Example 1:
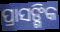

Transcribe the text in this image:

ପ୍ରାସଙ୍ଗିକ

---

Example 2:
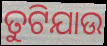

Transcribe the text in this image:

ତୁଟିଯାଉ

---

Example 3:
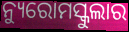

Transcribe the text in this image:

ନ୍ୟୁରୋମସ୍କୁଲାର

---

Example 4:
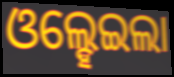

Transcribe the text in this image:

ଓଲ୍ହେଇଲା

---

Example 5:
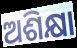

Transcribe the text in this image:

ଅଶିକ୍ଷା